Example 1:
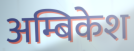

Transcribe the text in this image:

अम्बिकेश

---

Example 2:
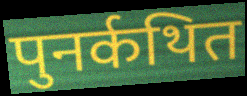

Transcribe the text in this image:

पुनर्कथित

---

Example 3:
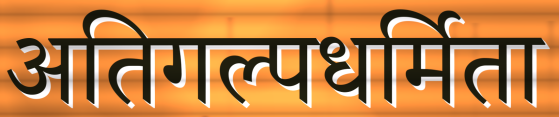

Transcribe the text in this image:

अतिगल्पधर्मिता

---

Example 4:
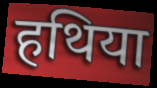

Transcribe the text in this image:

हथिया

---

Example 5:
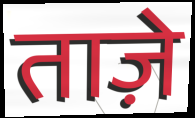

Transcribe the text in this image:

ताज़े